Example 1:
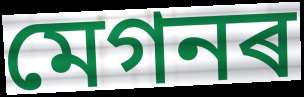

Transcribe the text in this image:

মেগনৰ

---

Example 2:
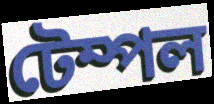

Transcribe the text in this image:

টেম্পল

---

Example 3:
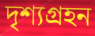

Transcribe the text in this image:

দৃশ্যগ্ৰহন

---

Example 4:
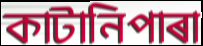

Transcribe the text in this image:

কাটানিপাৰা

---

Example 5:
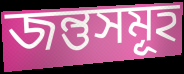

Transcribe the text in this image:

জন্তুসমূহ